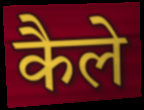
कैले